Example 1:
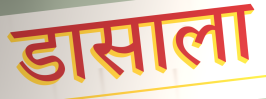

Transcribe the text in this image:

डासाला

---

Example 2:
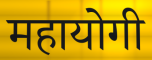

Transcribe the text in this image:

महायोगी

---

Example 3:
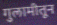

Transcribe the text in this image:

गुलामीतून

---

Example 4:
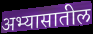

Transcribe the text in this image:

अभ्यासातील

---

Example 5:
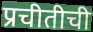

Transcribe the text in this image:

प्रचीतीची